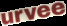
urvee